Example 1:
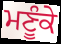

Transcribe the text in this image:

ਮਣੂੰਕੇ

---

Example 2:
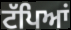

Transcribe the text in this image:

ਟੱਪਿਆਂ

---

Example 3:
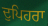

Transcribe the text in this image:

ਦੁਪਿਹਰਾ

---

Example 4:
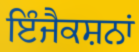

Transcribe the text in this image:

ਇੰਜੈਕਸ਼ਨਾਂ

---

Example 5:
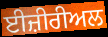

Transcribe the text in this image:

ਈਜ਼ੀਰੀਅਲ